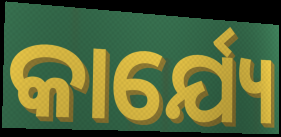
କାର୍ଯ୍ୟେ